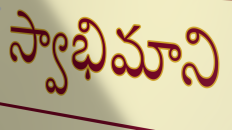
స్వాభిమాని